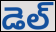
డెల్